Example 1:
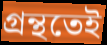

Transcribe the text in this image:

গ্ৰন্থতেই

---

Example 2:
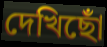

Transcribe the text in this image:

দেখিছোঁ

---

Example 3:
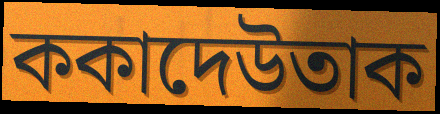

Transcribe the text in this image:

ককাদেউতাক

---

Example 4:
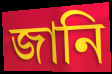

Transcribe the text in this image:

জানি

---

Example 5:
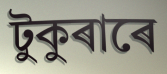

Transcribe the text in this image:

টুকুৰাৰে